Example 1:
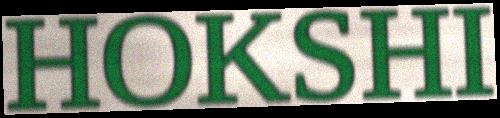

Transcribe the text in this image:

HOKSHI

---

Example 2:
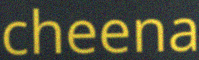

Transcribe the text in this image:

cheena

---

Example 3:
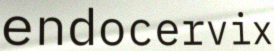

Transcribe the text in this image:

endocervix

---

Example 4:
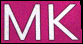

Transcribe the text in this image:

MK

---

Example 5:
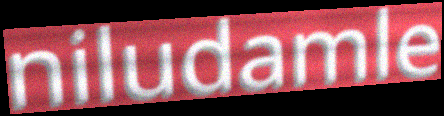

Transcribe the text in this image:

niludamle